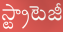
స్ట్రాటెజీ